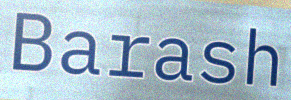
Barash